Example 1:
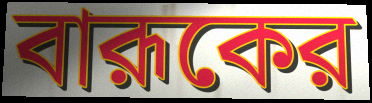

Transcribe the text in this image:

বারূকের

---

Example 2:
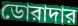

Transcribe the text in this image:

ডোরাদার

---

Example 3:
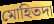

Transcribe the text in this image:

মোহিতদা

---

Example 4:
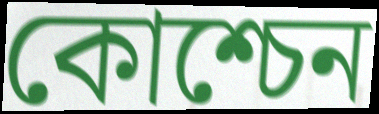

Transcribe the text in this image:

কোশ্চেন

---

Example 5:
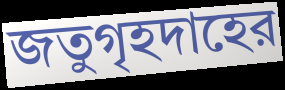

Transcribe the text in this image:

জতুগৃহদাহের